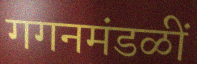
गगनमंडळीं